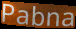
Pabna